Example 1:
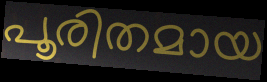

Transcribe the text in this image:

പൂരിതമായ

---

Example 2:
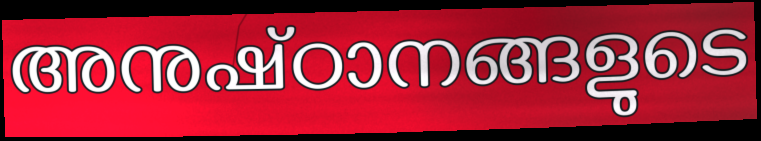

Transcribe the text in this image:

അനുഷ്‌ഠാനങ്ങളുടെ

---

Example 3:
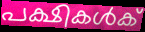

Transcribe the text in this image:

പക്ഷികൾക്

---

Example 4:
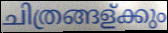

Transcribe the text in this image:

ചിത്രങ്ങള്ക്കും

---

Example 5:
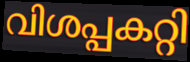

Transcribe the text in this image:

വിശപ്പകറ്റി